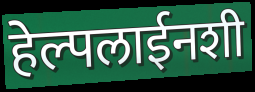
हेल्पलाईनशी